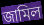
জামিল